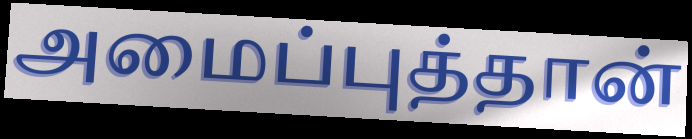
அமைப்புத்தான்